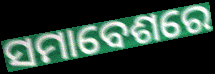
ସମାବେଶରେ